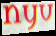
nyu